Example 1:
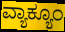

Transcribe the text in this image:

ವ್ಯಾಕ್ಯೂಂ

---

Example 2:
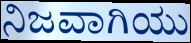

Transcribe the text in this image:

ನಿಜವಾಗಿಯು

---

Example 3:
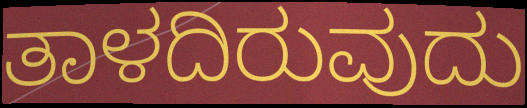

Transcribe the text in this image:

ತಾಳದಿರುವುದು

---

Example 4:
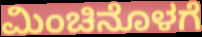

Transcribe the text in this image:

ಮಿಂಚಿನೊಳಗೆ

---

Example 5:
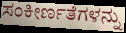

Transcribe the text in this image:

ಸಂಕೀರ್ಣತೆಗಳನ್ನು